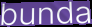
bunda